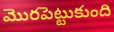
మొరపెట్టుకుంది